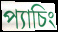
প্যাচিং